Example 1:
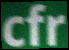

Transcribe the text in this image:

cfr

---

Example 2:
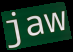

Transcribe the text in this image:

jaw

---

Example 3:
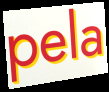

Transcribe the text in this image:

pela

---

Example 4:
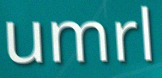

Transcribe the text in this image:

umrl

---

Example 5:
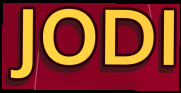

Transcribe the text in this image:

JODI